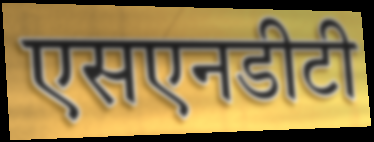
एसएनडीटी